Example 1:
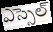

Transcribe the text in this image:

ఎస్సెల్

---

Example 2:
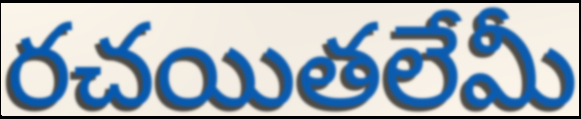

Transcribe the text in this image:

రచయితలేమీ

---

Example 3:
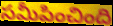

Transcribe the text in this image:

సమీపించింది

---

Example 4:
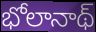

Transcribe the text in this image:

భోలానాథ్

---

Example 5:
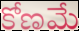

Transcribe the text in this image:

కోణమే